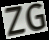
ZG